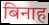
बिनाह